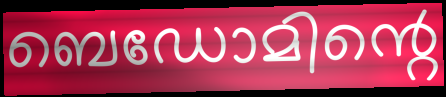
ബെഡോമിന്റെ